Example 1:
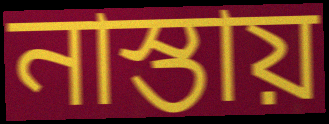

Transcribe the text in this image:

নাস্তায়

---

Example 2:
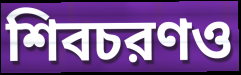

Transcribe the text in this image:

শিবচরণও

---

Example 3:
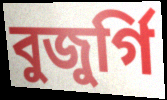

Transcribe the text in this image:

বুজুর্গি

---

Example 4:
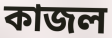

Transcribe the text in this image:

কাজল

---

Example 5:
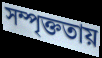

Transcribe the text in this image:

সম্পৃক্ততায়